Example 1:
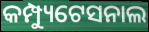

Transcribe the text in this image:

କମ୍ପ୍ୟୁଟେସନାଲ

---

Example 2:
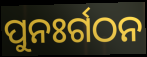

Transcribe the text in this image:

ପୁନଃର୍ଗଠନ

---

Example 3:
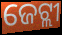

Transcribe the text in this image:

ଜେଟ୍ଲୀ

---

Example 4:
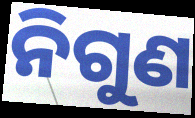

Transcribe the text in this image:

ନିଗୁଣ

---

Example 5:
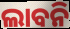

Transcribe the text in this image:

ଲାବନି